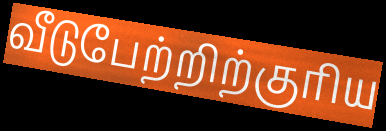
வீடுபேற்றிற்குரிய